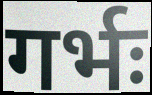
गर्भः